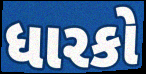
ધારકો